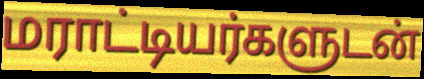
மராட்டியர்களுடன்